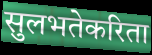
सुलभतेकरिता